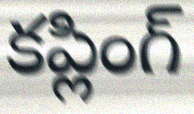
కప్లింగ్